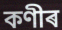
কণীৰ